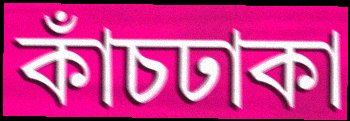
কাঁচঢাকা